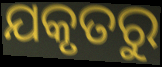
ଯକୃତରୁ